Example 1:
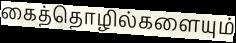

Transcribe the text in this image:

கைத்தொழில்களையும்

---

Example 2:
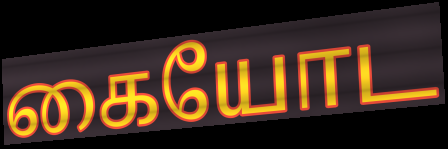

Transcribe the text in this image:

கையோட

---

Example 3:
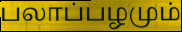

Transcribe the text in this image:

பலாப்பழமும்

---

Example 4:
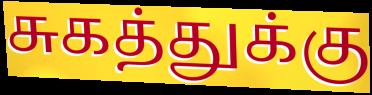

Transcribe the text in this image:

சுகத்துக்கு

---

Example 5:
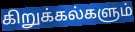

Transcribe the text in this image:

கிறுக்கல்களும்